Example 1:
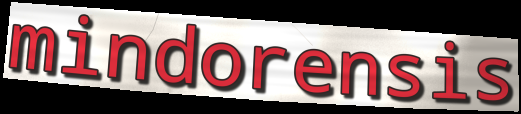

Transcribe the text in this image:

mindorensis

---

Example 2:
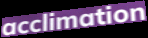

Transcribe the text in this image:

acclimation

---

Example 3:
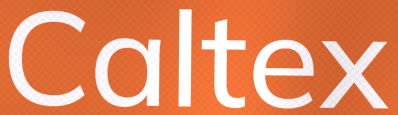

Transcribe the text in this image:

Caltex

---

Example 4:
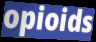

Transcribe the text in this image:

opioids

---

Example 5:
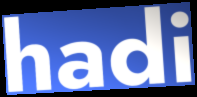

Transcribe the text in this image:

hadi